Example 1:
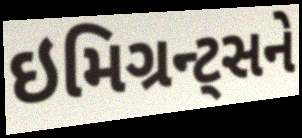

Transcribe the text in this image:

ઇમિગ્રન્ટ્સને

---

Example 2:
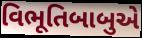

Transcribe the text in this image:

વિભૂતિબાબુએ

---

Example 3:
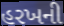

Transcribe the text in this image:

હરખની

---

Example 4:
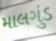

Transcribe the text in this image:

માલગુંડ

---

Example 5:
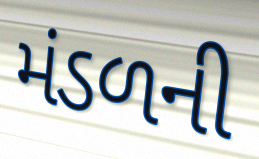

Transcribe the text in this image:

મંડળની